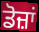
ਡੋਜ਼ਾਂ